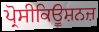
ਪ੍ਰੋਸੀਕਿਊਸ਼ਨਜ਼